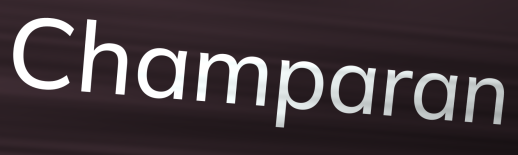
Champaran